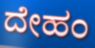
ದೇಹಂ